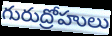
గురుద్రోహులు